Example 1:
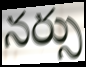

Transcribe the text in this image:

నర్సు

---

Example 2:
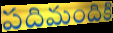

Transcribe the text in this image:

పదిమందికి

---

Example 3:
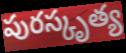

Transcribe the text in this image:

పురస్కృత్య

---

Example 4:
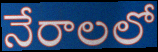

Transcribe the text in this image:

నేరాలలో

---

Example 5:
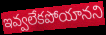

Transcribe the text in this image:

ఇవ్వలేకపోయానని